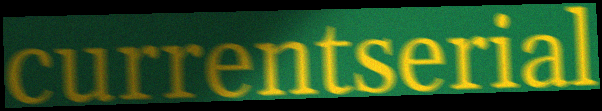
currentserial